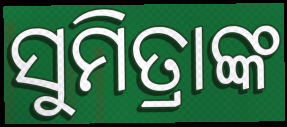
ସୁମିତ୍ରାଙ୍କ